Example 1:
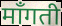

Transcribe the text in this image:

माँगती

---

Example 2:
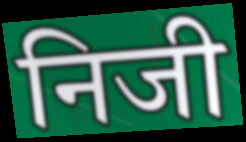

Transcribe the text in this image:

निजी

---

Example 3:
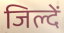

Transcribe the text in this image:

जिल्दें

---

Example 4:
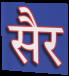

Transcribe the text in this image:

सैर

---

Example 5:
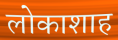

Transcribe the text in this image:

लोकाशाह